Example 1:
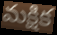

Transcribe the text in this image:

మక్షిక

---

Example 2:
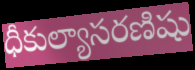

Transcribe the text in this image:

ధీకుల్యాసరణిషు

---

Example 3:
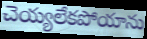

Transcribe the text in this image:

చెయ్యలేకపోయాను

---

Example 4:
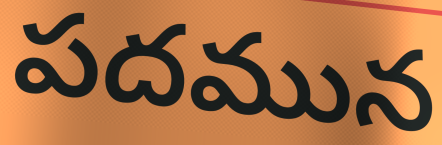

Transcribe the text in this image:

పదమున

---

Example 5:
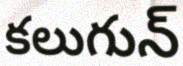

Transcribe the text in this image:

కలుగున్